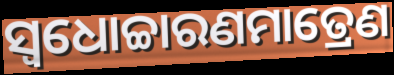
ସ୍ଵଧୋଚ୍ଚାରଣମାତ୍ରେଣ